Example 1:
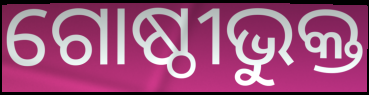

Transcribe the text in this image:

ଗୋଷ୍ଠୀଭୁକ୍ତ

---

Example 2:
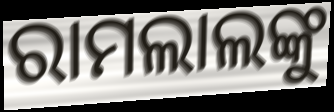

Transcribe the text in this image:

ରାମଲାଲଙ୍କୁ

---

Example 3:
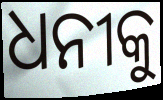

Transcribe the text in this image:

ଧନୀକୁ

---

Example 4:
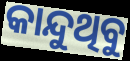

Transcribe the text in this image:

କାନ୍ଦୁଥିବୁ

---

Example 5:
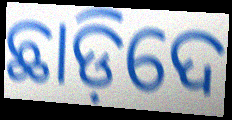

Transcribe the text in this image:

ଛାଡ଼ିଦେ